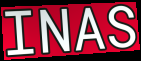
INAS